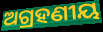
ଅଗ୍ରହଣୀୟ